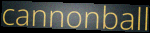
cannonball